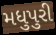
મધુપુરી